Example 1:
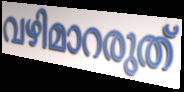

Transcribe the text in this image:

വഴിമാറരുത്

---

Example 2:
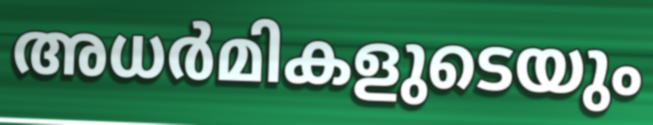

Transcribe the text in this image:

അധർമികളുടെയും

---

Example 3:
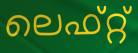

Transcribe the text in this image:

ലെഫ്റ്റ്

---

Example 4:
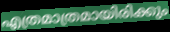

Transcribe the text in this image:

എത്രമാത്രമായിരിക്കും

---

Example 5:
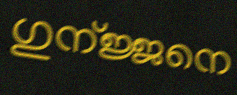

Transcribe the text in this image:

ഗുന്ജ്ജനെ